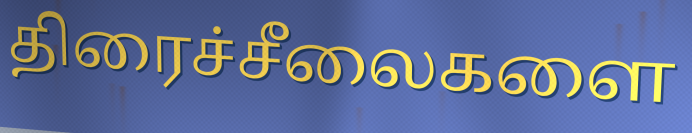
திரைச்சீலைகளை